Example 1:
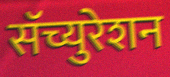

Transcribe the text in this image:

सॅच्युरेशन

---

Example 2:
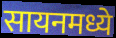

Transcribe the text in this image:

सायनमध्ये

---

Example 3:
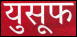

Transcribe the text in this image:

युसूफ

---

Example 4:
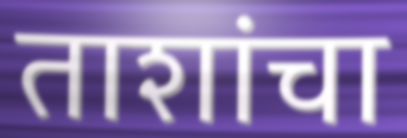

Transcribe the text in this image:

ताशांचा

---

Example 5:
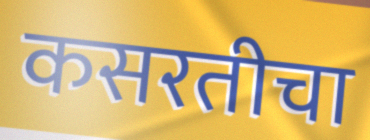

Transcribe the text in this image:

कसरतीचा